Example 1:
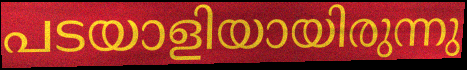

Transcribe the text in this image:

പടയാളിയായിരുന്നു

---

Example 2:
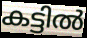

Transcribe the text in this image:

കട്ടിൽ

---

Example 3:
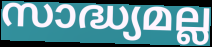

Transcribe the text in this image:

സാദ്ധ്യമല്ല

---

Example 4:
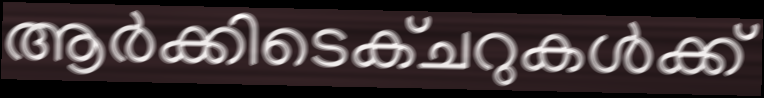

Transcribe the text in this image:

ആർക്കിടെക്ചറുകൾക്ക്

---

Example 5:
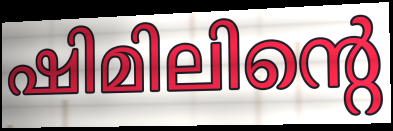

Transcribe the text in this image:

ഷിമിലിന്റെ